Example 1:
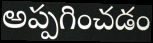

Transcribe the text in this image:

అప్పగించడం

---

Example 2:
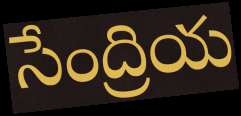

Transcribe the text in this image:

సేంద్రియ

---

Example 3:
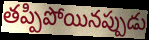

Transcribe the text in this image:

తప్పిపోయినప్పుడు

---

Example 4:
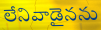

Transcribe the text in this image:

లేనివాడైనను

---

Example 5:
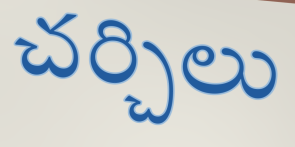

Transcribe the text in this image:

చర్చిలు